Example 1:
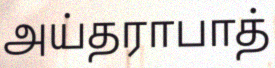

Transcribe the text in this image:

அய்தராபாத்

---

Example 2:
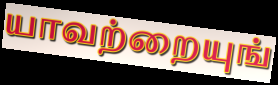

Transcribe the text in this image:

யாவற்றையுங்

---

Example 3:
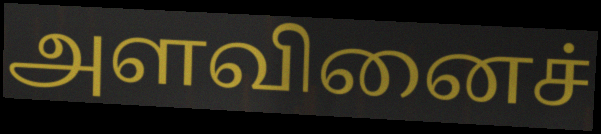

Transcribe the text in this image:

அளவினைச்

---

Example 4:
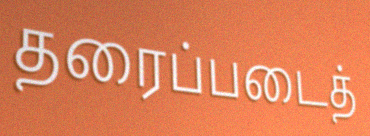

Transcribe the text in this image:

தரைப்படைத்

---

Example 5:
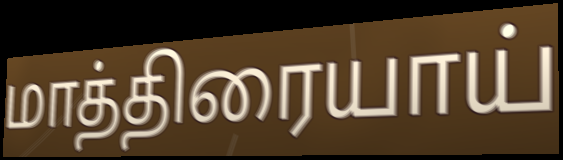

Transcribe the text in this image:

மாத்திரையாய்